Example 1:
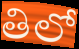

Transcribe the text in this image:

తిలో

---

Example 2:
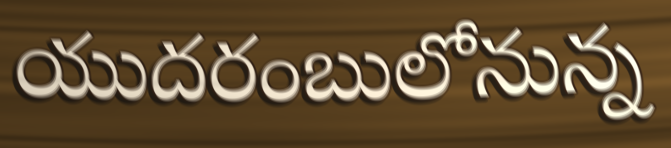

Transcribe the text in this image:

యుదరంబులోనున్న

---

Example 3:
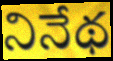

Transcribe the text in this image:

నినేథ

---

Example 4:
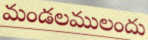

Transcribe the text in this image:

మండలములందు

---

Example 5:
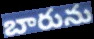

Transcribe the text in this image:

బారును